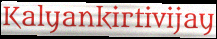
Kalyankirtivijay